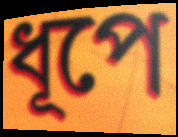
ধূপে